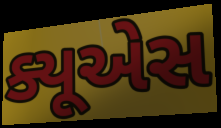
ક્યૂએસ